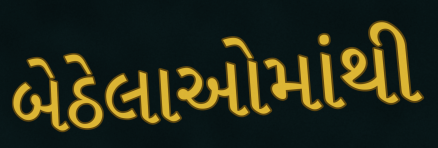
બેઠેલાઓમાંથી